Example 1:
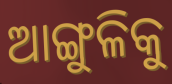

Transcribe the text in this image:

ଆଙ୍ଗୁଳିକୁ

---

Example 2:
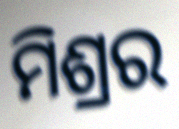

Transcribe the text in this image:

ମିଶ୍ରର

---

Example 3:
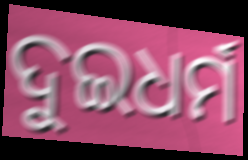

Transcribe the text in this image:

ଦୁଇଧର୍ମ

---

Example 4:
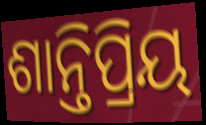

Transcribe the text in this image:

ଶାନ୍ତିପ୍ରିୟ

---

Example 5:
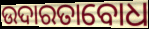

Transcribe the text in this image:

ଉଦାରତାବୋଧ